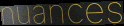
nuances